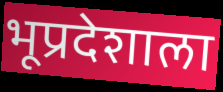
भूप्रदेशाला